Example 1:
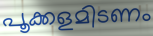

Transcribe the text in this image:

പൂക്കളമിടണം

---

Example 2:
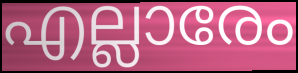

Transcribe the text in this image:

എല്ലാരേം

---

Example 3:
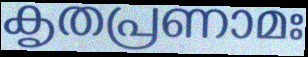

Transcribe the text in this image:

കൃതപ്രണാമഃ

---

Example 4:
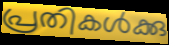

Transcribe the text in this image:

പ്രതികൾക്കു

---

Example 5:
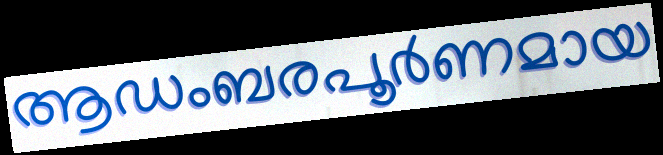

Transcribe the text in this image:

ആഡംബരപൂർണമായ